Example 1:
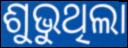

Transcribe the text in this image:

ଶୁଭୁଥିଲା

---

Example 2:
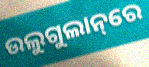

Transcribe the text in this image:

ଉଲୁଗୁଲାନ୍‌ରେ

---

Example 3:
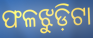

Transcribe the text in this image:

ଫଳଝୁଡ଼ିଟା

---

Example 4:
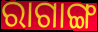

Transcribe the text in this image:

ରାଗାଙ୍ଗ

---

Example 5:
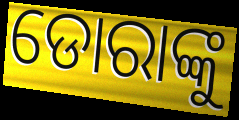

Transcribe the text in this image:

ଡୋରାଙ୍କୁ